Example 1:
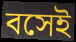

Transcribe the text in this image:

বসেই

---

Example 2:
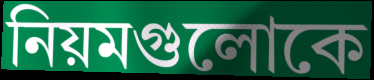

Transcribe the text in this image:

নিয়মগুলোকে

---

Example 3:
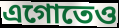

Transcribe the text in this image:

এগোতেও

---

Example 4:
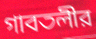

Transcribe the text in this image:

গাবতলীর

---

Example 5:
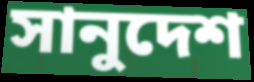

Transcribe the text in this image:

সানুদেশ